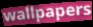
wallpapers